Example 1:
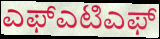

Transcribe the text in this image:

ಎಫ್ಎಟಿಎಫ್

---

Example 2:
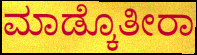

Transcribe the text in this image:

ಮಾಡ್ಕೊತೀರಾ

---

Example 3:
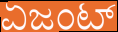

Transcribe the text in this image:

ಏಜಂಟ್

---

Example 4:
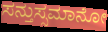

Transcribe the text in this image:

ಸನ್ತುಸ್ಸಮಾನೋ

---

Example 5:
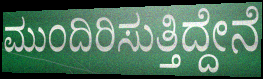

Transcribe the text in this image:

ಮುಂದಿರಿಸುತ್ತಿದ್ದೇನೆ